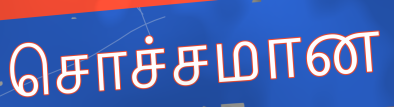
சொச்சமான